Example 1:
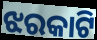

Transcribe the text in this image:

ଝରକାଟି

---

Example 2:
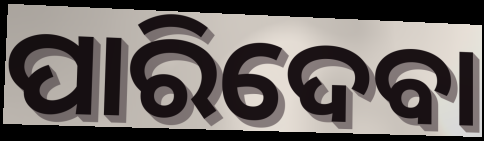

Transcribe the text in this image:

ପାରିଦେବା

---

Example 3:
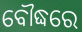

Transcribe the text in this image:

ବୌଦ୍ଧରେ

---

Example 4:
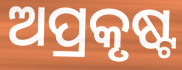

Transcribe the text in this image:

ଅପ୍ରକୃଷ୍ଟ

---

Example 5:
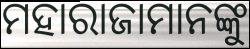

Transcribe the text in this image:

ମହାରାଜାମାନଙ୍କୁ